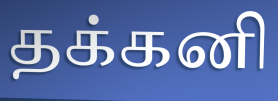
தக்கனி